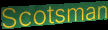
Scotsman